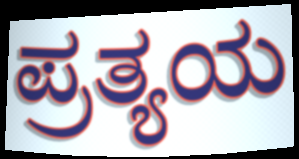
ಪ್ರತ್ಯಯ